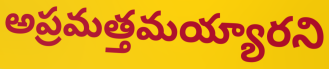
అప్రమత్తమయ్యారని